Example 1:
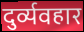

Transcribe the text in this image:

दुर्व्यवहार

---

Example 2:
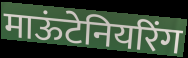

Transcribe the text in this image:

माऊंटेनियरिंग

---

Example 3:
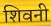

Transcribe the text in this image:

शिवनी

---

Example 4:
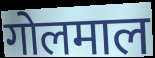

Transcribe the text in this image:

गोलमाल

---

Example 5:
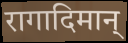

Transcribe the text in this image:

रागादिमान्